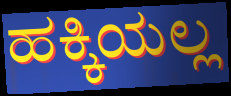
ಹಕ್ಕಿಯಲ್ಲ